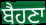
ਬੈਹਣਾ